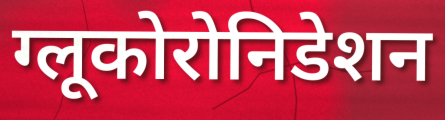
ग्लूकोरोनिडेशन